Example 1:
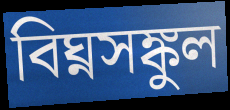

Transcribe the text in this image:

বিঘ্নসঙ্কুল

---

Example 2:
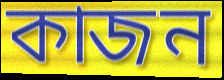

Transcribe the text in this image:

কাজন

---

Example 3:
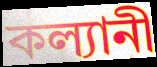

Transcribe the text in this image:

কল্যানী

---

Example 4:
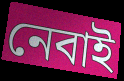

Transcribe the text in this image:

নেবাই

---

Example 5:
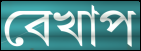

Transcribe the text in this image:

বেখাপ